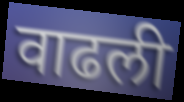
वाढली